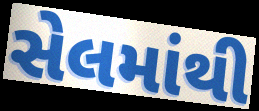
સેલમાંથી